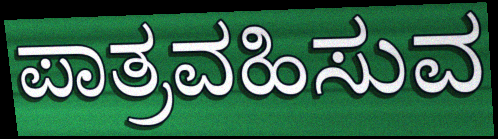
ಪಾತ್ರವಹಿಸುವ